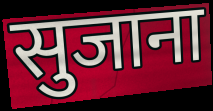
सुजाना